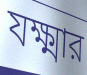
যক্ষ্মার